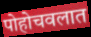
पोहोचवलात